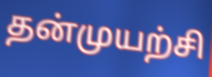
தன்முயற்சி